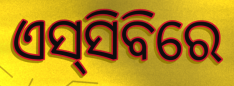
ଏସ୍‌ସିବିରେ